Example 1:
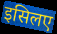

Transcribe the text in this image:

इसिलए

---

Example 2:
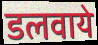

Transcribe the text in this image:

डलवाये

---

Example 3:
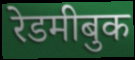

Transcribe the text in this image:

रेडमीबुक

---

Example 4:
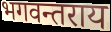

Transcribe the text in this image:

भगवन्तराय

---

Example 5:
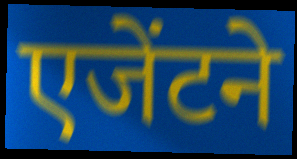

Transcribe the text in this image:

एजेंटने